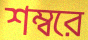
শম্বরে